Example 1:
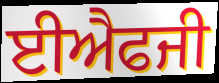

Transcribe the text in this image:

ਈਐਫਜੀ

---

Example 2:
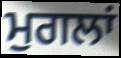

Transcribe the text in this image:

ਮੁਗਲਾਂ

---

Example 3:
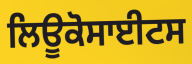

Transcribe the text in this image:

ਲਿਊਕੋਸਾਈਟਸ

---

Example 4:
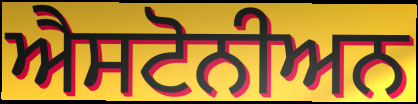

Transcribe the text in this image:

ਐਸਟੋਨੀਅਨ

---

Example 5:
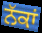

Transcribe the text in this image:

ਨੱਕਾਂ